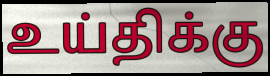
உய்திக்கு